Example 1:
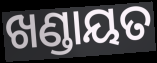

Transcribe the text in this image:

ଖଣ୍ଡାୟତ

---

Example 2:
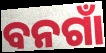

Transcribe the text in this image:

ବନଗାଁ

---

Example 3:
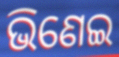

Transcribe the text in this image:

ଭିଣେଇ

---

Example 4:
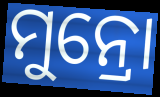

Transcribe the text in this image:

ମୁନ୍ରୋ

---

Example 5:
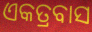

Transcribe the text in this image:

ଏକତ୍ରବାସ